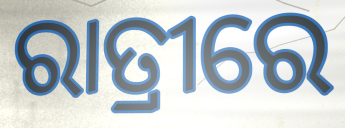
ରାତ୍ରୀରେ